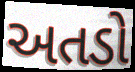
અતડો